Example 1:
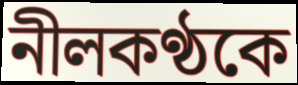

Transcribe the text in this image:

নীলকণ্ঠকে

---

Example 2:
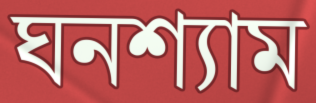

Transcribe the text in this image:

ঘনশ্যাম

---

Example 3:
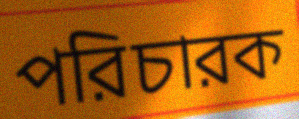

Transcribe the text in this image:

পরিচারক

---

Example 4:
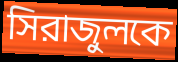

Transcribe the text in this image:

সিরাজুলকে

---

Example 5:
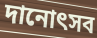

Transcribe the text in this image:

দানোৎসব